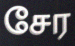
சேர